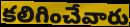
కలిగించేవారు